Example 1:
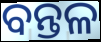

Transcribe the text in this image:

ବନ୍ତଳ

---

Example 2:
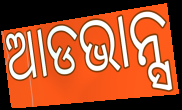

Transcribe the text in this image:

ଆଡଭାନ୍ସ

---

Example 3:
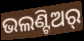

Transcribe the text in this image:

ଭଲଣ୍ଟିଅର୍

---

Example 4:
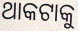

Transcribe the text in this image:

ଥାକଟାକୁ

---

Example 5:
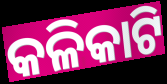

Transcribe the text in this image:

କଳିକାଟି